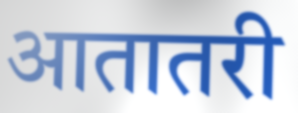
आतातरी